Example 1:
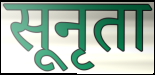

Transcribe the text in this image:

सूनृता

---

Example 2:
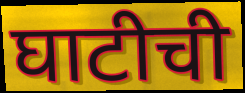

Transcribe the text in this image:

घाटीची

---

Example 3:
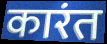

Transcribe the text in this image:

कारंत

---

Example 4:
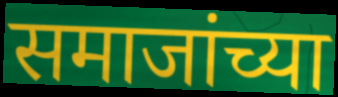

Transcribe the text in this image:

समाजांच्या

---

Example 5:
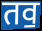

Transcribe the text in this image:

तव॒